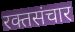
रक्तसंचार